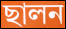
ছালন